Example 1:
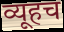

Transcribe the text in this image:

व्यूहच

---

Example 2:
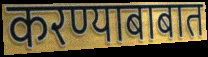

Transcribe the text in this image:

करण्याबाबात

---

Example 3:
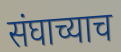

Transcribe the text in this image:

संघाच्याच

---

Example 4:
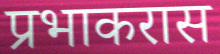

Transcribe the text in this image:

प्रभाकरास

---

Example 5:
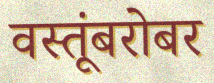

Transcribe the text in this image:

वस्तूंबरोबर